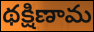
థక్షిణామ